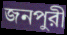
জনপুরী